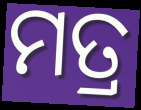
ମତ୍ର